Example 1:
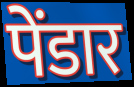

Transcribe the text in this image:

पेंडार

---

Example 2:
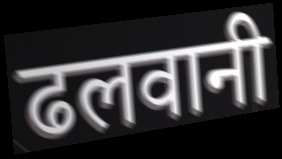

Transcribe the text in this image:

ढलवानी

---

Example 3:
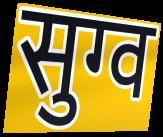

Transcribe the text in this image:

सुग्व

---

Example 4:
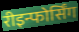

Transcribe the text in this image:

रीइन्फोर्सिंग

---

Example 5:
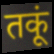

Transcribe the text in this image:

तकूं